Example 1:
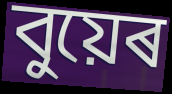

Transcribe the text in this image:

বুয়েৰ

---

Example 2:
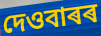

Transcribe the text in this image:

দেওবাৰৰ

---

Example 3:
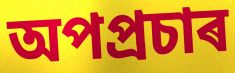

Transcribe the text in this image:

অপপ্ৰচাৰ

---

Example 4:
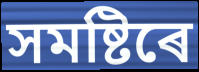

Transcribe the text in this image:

সমষ্টিৰে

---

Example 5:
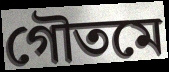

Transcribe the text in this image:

গৌতমে